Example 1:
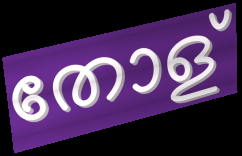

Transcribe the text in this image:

തോള്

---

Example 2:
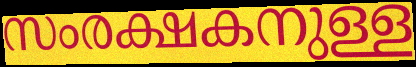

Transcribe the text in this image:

സംരക്ഷകനുള്ള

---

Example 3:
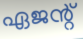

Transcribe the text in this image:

ഏജന്റ്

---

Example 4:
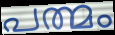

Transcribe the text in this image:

പത്മം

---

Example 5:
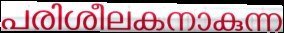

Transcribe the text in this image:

പരിശീലകനാകുന്ന